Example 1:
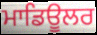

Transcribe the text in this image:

ਮਾਡਿਊਲਰ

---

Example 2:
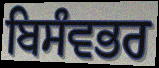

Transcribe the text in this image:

ਬਿਸੰਵਭਰ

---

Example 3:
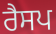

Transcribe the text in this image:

ਰੈਸਪ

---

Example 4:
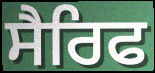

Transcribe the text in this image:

ਸੈਰਿਫ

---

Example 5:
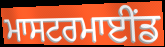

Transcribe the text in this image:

ਮਾਸਟਰਮਾਈਂਡ